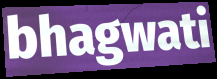
bhagwati